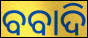
ବବାଦି